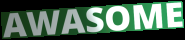
AWASOME